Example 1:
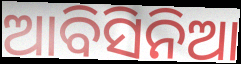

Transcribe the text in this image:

ଆବିସିନିଆ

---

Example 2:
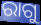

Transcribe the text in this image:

ରାଗୁ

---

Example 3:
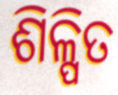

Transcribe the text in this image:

ଶିଳ୍ପିତ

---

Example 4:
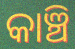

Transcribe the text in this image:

କାଞ୍ଚି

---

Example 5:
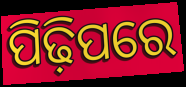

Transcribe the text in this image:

ପିଢ଼ିପରେ